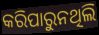
କରିପାରୁନଥିଲି